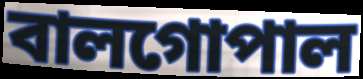
বালগোপাল